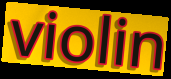
violin